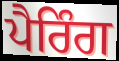
ਪੈਰਿੰਗ